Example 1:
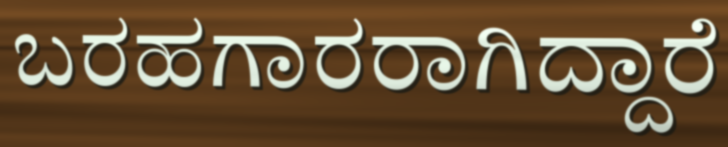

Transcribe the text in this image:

ಬರಹಗಾರರಾಗಿದ್ದಾರೆ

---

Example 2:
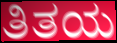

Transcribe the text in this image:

ತಿತಯ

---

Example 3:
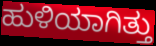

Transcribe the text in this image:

ಹುಳಿಯಾಗಿತ್ತು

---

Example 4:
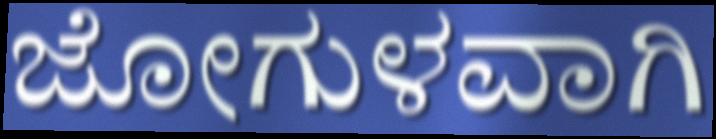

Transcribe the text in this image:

ಜೋಗುಳವಾಗಿ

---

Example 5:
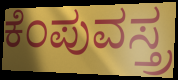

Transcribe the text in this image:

ಕೆಂಪುವಸ್ತ್ರ